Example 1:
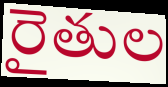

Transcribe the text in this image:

రైతుల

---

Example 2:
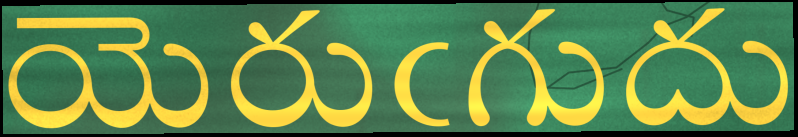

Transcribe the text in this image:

యెరుఁగుదు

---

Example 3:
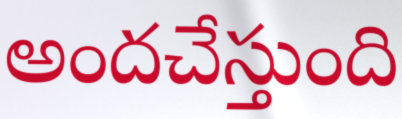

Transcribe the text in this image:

అందచేస్తుంది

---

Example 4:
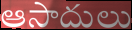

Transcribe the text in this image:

ఆసాదులు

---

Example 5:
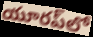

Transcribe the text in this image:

యూరప్‌లో